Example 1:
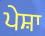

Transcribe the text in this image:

ਪੇਸ਼ਾ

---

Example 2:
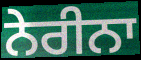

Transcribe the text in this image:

ਨੇਰੀਨਾ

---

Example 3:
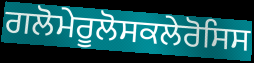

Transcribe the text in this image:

ਗਲੋਮੇਰੂਲੋਸਕਲੇਰੋਸਿਸ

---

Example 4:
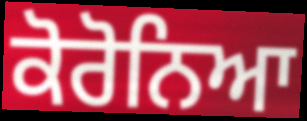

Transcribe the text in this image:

ਕੋਰੋਨਿਆ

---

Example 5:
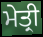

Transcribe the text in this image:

ਮੇਤ੍ਰੀ